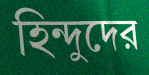
হিন্দুদের